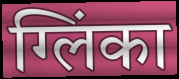
ग्लिंका